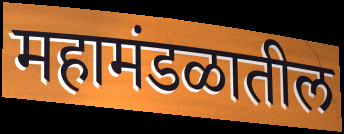
महामंडळातील